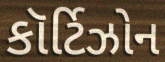
કૉર્ટિઝોન